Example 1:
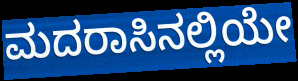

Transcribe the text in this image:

ಮದರಾಸಿನಲ್ಲಿಯೇ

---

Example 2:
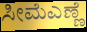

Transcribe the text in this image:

ಸೀಮೆಎಣ್ಣೆ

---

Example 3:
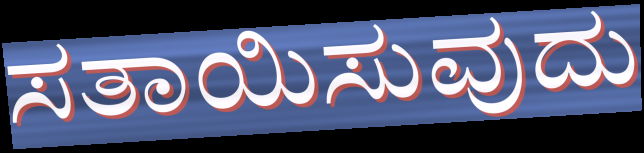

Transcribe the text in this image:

ಸತಾಯಿಸುವುದು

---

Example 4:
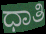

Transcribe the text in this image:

ಧಾತಿ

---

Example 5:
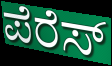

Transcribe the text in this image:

ಪೆರೆಸ್